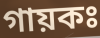
গায়কঃ